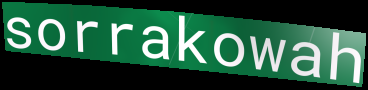
sorrakowah